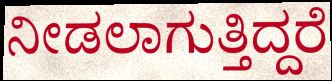
ನೀಡಲಾಗುತ್ತಿದ್ದರೆ